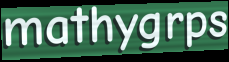
mathygrps